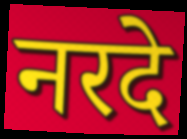
नरदे